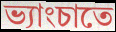
ভ্যাংচাতে